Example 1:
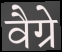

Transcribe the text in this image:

वैग्रे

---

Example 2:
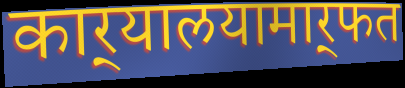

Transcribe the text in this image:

कार्यालयामार्फत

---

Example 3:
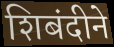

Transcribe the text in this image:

शिबंदीने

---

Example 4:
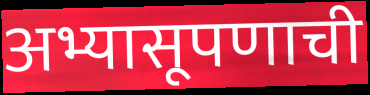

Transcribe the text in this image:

अभ्यासूपणाची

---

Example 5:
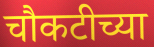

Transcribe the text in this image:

चौकटीच्या